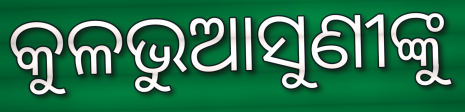
କୁଳଭୁଆସୁଣୀଙ୍କୁ